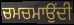
ਚਮਚਮਾਉਂਦੀ